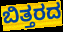
ಬಿತ್ತರದ